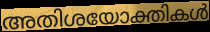
അതിശയോക്തികൾ